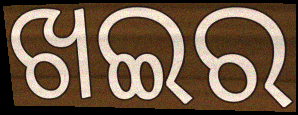
ଖଇର